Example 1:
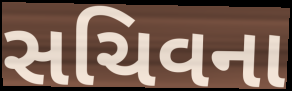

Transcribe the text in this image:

સચિવના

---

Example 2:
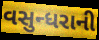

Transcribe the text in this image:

વસુન્ધરાની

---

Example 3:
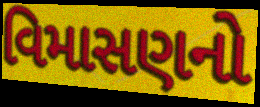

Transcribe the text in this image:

વિમાસણનો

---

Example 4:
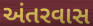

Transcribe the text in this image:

અંતરવાસ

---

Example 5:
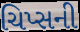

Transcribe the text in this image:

ચિપ્સની